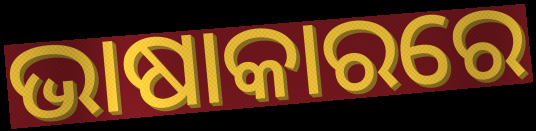
ଭାଷାକାରରେ